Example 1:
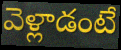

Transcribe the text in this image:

వెళ్లాడంటే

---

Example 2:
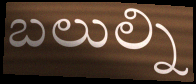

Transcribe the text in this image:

బలుల్ని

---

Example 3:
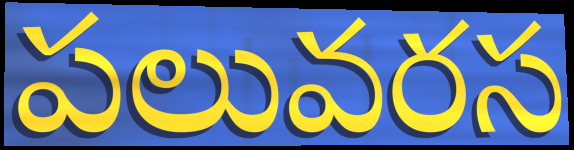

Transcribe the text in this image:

పలువరస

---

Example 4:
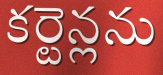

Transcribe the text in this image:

కర్టెన్లను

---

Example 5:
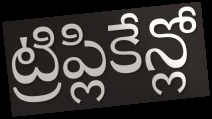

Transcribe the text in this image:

ట్రిప్లికేన్లో